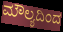
ಮೌಲ್ಯದಿಂದ